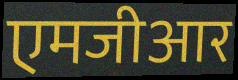
एमजीआर